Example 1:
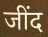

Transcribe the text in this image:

जींद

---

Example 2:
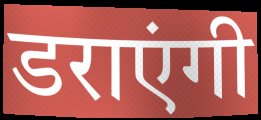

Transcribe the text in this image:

डराएंगी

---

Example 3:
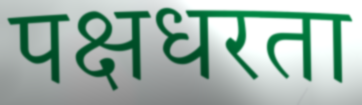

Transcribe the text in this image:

पक्षधरता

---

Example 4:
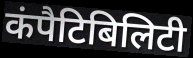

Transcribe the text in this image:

कंपैटिबिलिटी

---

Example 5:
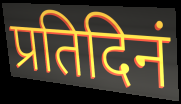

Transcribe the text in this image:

प्रतिदिनं